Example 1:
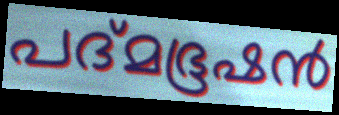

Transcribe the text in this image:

പദ്മഭൂഷൻ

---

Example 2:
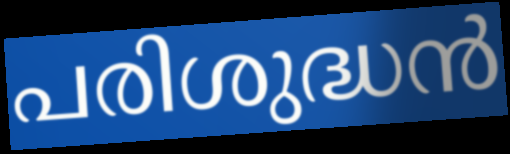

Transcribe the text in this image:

പരിശുദ്ധൻ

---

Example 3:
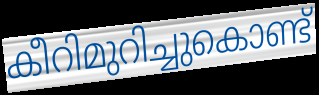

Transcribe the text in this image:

കീറിമുറിച്ചുകൊണ്ട്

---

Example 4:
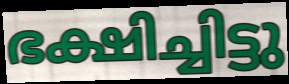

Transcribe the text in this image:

ഭക്ഷിച്ചിട്ടു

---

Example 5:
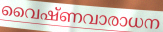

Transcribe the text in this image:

വൈഷ്ണവാരാധന